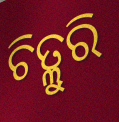
ଚିତ୍ଲୁରି